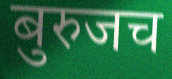
बुरुजच